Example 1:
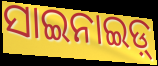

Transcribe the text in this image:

ସାଇନାଇଡ଼୍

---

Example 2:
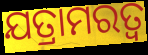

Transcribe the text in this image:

ଯତ୍ରାମରତ୍ଵ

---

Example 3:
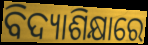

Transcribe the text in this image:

ବିଦ୍ୟାଶିକ୍ଷାରେ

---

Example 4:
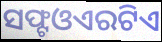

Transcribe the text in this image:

ସଫ୍ଟଓଏରଟିଏ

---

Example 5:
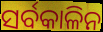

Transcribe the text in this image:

ସର୍ବକାଳିନ